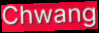
Chwang